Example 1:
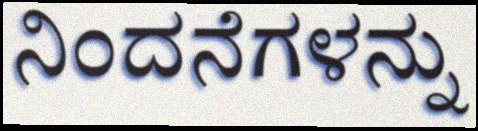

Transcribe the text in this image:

ನಿಂದನೆಗಳನ್ನು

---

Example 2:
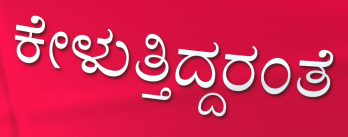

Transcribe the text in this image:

ಕೇಳುತ್ತಿದ್ದರಂತೆ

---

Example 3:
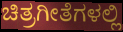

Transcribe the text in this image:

ಚಿತ್ರಗೀತೆಗಳಲ್ಲಿ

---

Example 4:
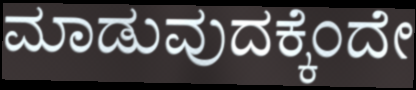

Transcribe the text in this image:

ಮಾಡುವುದಕ್ಕೆಂದೇ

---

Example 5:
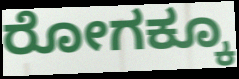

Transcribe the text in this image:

ರೋಗಕ್ಕೂ